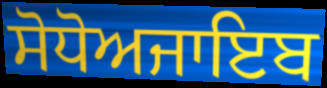
ਸੋਧੋਅਜਾਇਬ